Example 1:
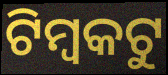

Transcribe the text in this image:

ଟିମ୍ବକଟୁ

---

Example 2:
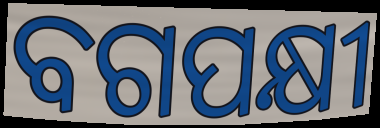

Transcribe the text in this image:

ବଗପକ୍ଷୀ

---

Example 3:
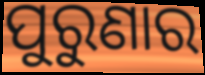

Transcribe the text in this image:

ପୁରୁଣାର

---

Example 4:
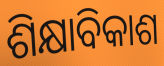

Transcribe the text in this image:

ଶିକ୍ଷାବିକାଶ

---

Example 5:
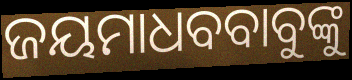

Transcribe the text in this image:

ଜୟମାଧବବାବୁଙ୍କୁ